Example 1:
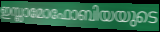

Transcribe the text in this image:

ഇസ്ലാമോഫോബിയയുടെ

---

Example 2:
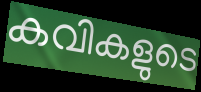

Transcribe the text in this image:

കവികളുടെ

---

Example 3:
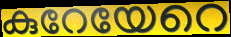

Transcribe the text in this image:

കുറേയേറെ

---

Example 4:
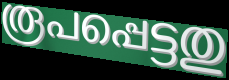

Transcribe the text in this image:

രൂപപ്പെട്ടതു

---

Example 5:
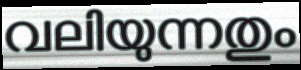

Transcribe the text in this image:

വലിയുന്നതും